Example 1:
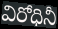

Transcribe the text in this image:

విరోధినీ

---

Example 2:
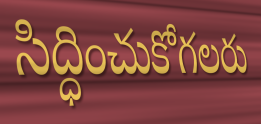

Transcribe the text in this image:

సిద్ధించుకోగలరు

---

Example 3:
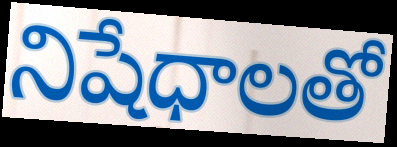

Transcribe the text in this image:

నిషేధాలతో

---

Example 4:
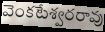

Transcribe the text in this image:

వెంకటేశ్వరరావు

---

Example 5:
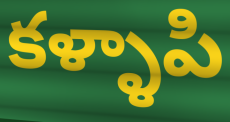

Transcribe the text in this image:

కళ్ళాపి